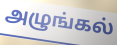
அழுங்கல்